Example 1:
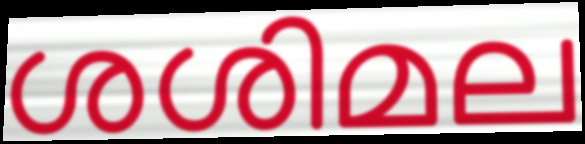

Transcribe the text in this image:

ശശിമല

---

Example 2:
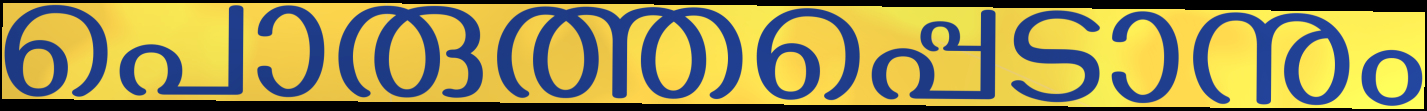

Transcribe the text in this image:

പൊരുത്തപ്പെടാനും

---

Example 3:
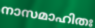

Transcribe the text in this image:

നാസമാഹിതഃ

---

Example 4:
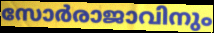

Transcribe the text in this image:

സോർരാജാവിനും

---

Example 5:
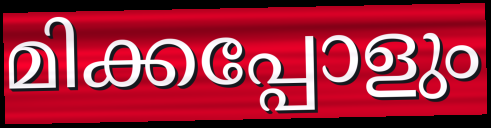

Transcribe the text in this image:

മിക്കപ്പോളും